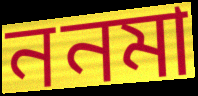
ননমা